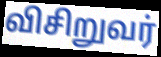
விசிறுவர்